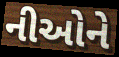
નીઓને